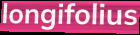
longifolius